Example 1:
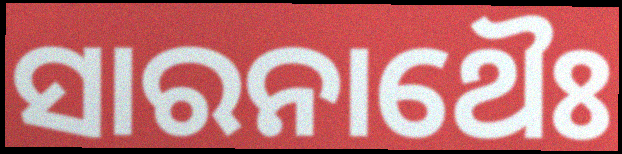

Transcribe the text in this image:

ସାରନାଥୈଃ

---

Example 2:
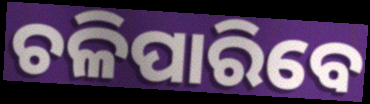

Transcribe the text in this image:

ଚଳିପାରିବେ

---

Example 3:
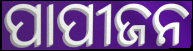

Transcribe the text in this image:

ପାପୀଜନ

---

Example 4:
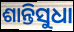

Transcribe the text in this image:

ଶାନ୍ତିସୁଧା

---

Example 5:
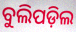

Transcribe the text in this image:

ବୁଲିପଡ଼ିଲ